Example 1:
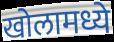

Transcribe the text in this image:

खोलामध्ये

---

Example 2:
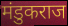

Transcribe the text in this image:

मंडुकराज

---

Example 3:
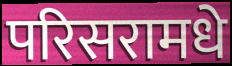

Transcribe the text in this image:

परिसरामधे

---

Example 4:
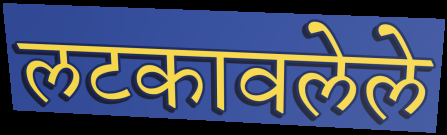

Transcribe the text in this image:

लटकावलेले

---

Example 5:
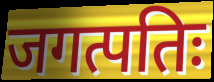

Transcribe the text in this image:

जगत्पतिः